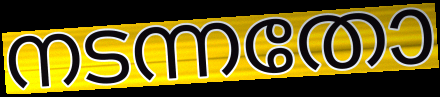
നടന്നതോ